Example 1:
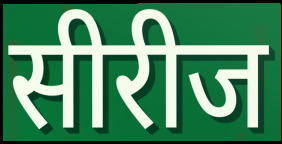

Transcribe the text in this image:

सीरीज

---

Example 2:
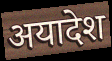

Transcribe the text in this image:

अयादेश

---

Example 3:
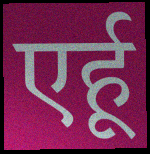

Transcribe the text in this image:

एर्हू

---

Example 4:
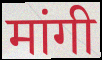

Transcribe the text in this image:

मांगी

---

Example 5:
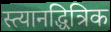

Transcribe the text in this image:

स्त्यानद्धित्रिक